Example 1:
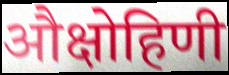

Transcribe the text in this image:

औक्षोहिणी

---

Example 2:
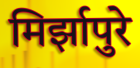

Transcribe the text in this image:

मिर्झापुरे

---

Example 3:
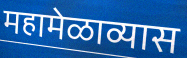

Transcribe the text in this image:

महामेळाव्यास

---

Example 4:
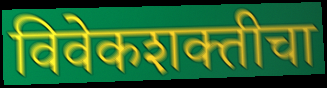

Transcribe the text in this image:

विवेकशक्तीचा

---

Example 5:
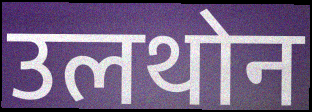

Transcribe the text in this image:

उलथोन